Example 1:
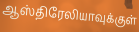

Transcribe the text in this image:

ஆஸ்திரேலியாவுக்குள்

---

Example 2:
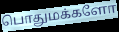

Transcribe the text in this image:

பொதுமக்களோ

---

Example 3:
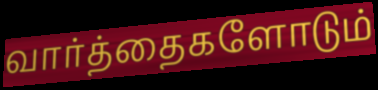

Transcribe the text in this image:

வார்த்தைகளோடும்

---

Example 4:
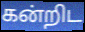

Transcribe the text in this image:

கன்றிட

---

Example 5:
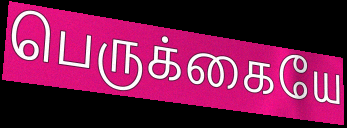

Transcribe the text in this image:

பெருக்கையே